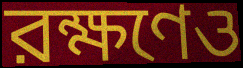
রক্ষণেও